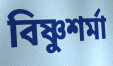
বিষ্ণুশর্মা